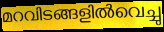
മറവിടങ്ങളിൽവെച്ചു